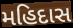
મહિદાસ